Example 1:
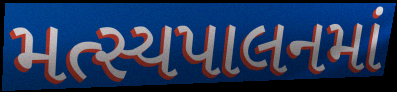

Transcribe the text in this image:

મત્સ્યપાલનમાં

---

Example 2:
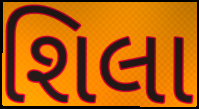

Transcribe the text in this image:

શિલા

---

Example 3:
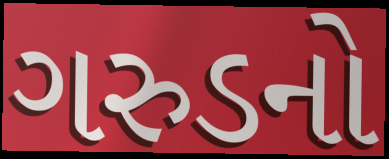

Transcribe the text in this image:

ગરુડનો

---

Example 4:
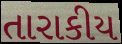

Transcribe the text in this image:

તારાકીય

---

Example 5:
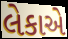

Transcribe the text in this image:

લેકાએ